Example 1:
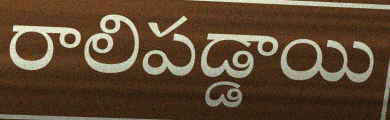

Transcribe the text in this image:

రాలిపడ్డాయి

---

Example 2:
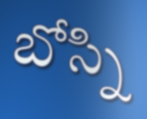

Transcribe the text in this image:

బోస్ని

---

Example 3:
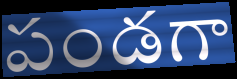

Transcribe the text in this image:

పండగా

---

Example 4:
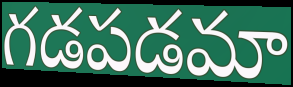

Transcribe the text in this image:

గడపడమా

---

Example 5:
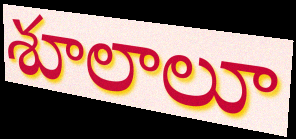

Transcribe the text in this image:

శూలాలూ